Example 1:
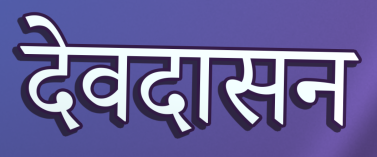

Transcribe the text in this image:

देवदासन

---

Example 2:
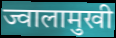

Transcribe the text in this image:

ज्‍वालामुखी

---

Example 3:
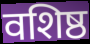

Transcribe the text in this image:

वशिष्ठ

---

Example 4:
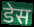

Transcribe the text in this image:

डेस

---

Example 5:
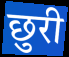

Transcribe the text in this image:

छुरी